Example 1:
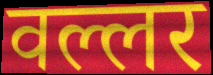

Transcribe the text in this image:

वल्लर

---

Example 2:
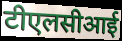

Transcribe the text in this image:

टीएलसीआई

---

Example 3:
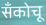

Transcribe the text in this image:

सँकोचू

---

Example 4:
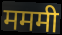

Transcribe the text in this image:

मममी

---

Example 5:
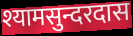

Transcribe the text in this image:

श्यामसुन्दरदास